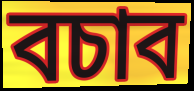
বচাব